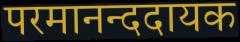
परमानन्ददायक